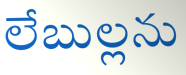
లేబుల్లను